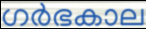
ഗർഭകാല